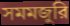
সমমজুরি